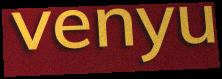
venyu